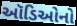
ઑડિઓનો